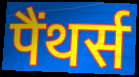
पैंथर्स